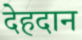
देहदान